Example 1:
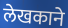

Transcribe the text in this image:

लेखकाने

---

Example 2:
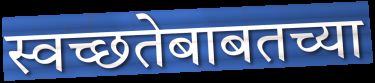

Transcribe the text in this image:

स्वच्छतेबाबतच्या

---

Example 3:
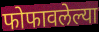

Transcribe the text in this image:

फोफावलेल्या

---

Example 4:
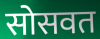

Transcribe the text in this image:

सोसवत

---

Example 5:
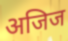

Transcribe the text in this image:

अजिज